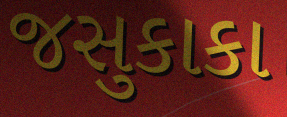
જસુકાકા